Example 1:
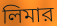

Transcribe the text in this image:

লিমার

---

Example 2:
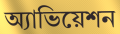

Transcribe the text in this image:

অ্যাভিয়েশন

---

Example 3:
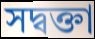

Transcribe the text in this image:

সদ্বক্তা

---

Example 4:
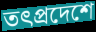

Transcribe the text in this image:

তৎপ্রদেশে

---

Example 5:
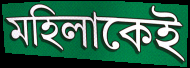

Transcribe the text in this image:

মহিলাকেই